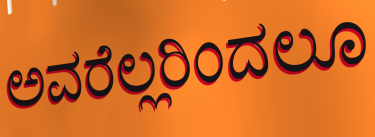
ಅವರೆಲ್ಲರಿಂದಲೂ